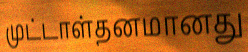
முட்டாள்தனமானது